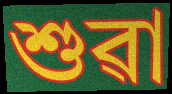
শুৱা